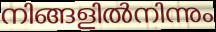
നിങ്ങളിൽനിന്നും